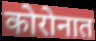
कोरोनात